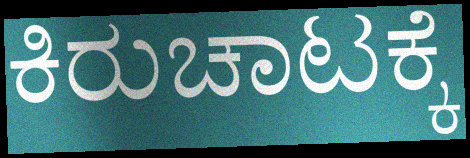
ಕಿರುಚಾಟಕ್ಕೆ